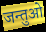
जन्तुओ